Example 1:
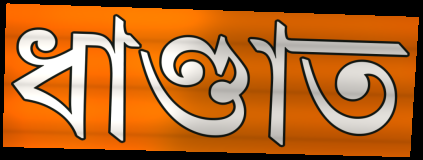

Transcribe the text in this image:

ধাণ্ডাত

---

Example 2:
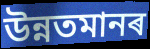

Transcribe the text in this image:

উন্নতমানৰ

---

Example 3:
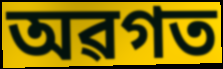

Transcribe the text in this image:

অৱগত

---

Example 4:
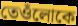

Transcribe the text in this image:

তেওঁলোকে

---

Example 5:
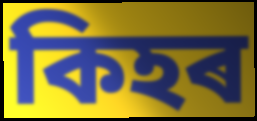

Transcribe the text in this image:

কিহৰ